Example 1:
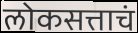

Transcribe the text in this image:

लोकसत्ताचं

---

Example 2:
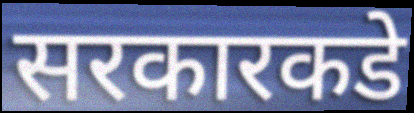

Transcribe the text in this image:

सरकारकडे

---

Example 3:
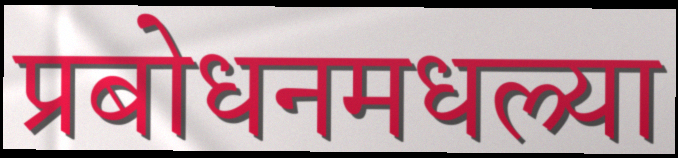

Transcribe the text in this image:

प्रबोधनमधल्या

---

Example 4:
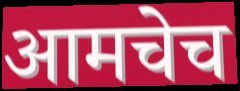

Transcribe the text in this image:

आमचेच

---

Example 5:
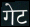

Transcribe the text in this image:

गेट